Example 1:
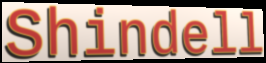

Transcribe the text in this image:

Shindell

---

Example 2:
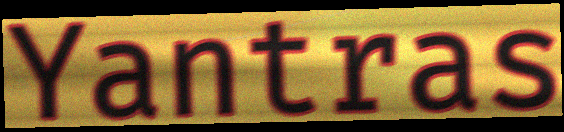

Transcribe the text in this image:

Yantras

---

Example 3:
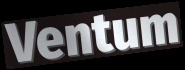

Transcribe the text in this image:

Ventum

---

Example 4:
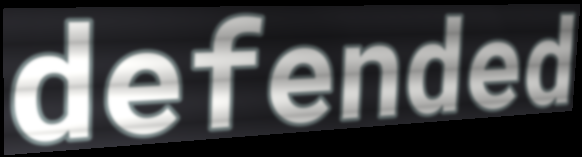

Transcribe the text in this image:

defended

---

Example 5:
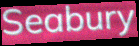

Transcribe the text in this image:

Seabury